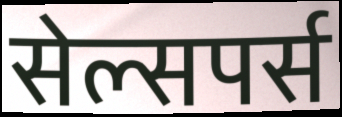
सेल्सपर्स